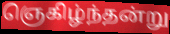
ஞெகிழ்ந்தன்று